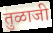
तुळाजी